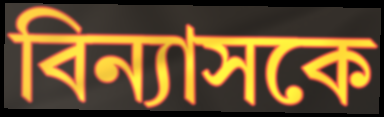
বিন্যাসকে